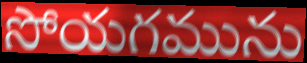
సోయగమును